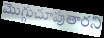
మొగ్గుచూపుతారని